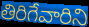
తిరిగేవారిని